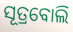
ସୂତ୍ରବୋଲି